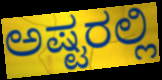
ಅಷ್ಟರಲ್ಲಿ